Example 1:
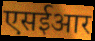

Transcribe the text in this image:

एसईआर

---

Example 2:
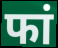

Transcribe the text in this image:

फां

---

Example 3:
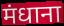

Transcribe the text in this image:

मंधाना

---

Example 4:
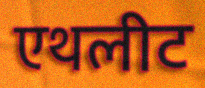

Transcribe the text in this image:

एथलीट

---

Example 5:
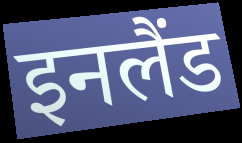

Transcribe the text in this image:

इनलैंड